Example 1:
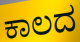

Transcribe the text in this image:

ಕಾಲದ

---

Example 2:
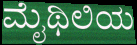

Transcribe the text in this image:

ಮೈಥಿಲಿಯ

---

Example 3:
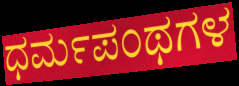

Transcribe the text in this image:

ಧರ್ಮಪಂಥಗಳ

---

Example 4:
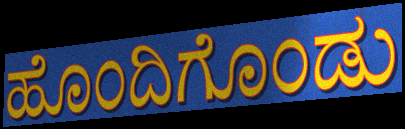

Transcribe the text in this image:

ಹೊಂದಿಗೊಂಡು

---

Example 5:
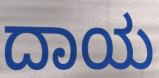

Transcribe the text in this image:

ದಾಯ